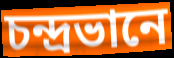
চন্দ্ৰভানে